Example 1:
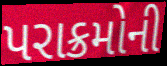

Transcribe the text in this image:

પરાક્રમોની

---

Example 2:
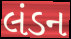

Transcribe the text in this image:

લંડન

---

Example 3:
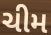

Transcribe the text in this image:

ચીમ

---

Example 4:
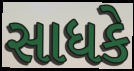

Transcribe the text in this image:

સાધકે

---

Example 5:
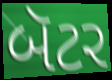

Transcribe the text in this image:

બૅટર